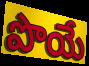
పొయే